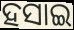
ହସାଇ